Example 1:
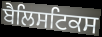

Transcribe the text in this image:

ਬੈਲਿਸਟਿਕਸ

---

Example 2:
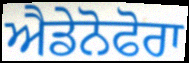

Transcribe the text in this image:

ਐਡੇਨੋਫੋਰਾ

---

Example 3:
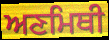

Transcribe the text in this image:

ਅਣਮਿਥੀ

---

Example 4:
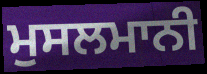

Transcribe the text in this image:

ਮੁਸਲਮਾਨੀ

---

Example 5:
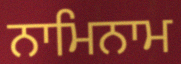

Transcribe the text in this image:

ਨਾਮਿਨਾਮ